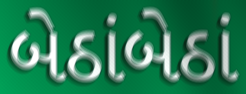
બેઠાંબેઠાં